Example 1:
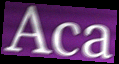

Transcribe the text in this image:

Aca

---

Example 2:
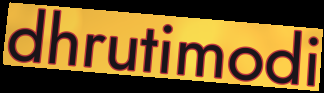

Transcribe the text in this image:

dhrutimodi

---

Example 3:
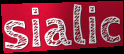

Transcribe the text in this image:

sialic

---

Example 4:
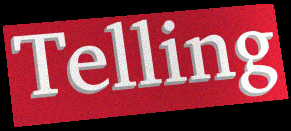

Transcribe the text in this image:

Telling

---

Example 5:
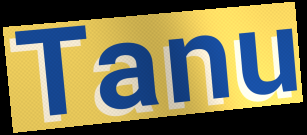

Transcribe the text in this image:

Tanu